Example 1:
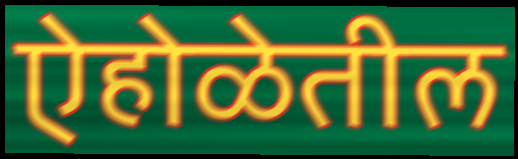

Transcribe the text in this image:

ऐहोळेतील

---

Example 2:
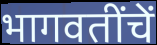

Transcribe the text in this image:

भागवतींचें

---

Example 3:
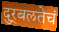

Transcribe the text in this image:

दुर्बलतेचं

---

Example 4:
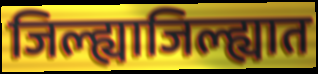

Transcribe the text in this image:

जिल्ह्याजिल्ह्यात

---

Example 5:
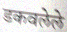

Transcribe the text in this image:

डकवलेले